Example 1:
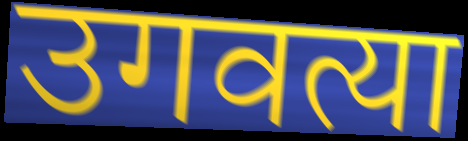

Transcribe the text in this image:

उगवत्या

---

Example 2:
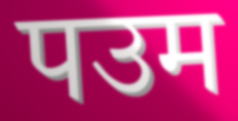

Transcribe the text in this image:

पउम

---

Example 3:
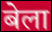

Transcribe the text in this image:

बेला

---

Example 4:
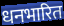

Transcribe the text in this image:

धनभारित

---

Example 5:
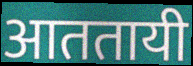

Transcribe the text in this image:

आततायी